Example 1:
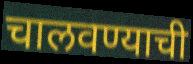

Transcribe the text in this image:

चालवण्याची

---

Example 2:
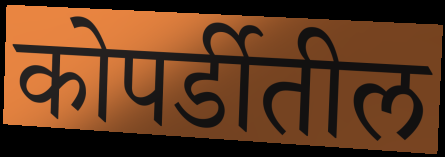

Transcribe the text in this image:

कोपर्डीतील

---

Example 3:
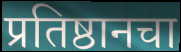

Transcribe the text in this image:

प्रतिष्ठानचा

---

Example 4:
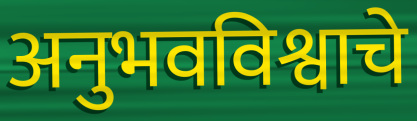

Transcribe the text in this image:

अनुभवविश्वाचे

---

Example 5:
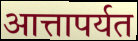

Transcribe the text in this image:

आत्तापर्यत